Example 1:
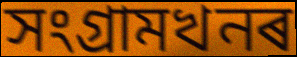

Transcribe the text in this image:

সংগ্ৰামখনৰ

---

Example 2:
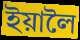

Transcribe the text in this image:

ইয়ালৈ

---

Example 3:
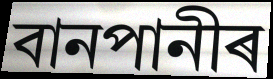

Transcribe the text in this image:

বানপানীৰ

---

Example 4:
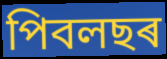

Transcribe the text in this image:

পিবলছৰ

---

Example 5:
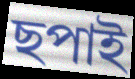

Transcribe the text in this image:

ছপাই